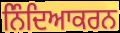
ਨਿੰਦਿਆਕਰਨ